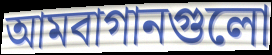
আমবাগানগুলো